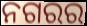
ନଗରର